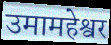
उमामहेश्वर